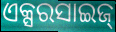
ଏକ୍ସରସାଇଜ୍